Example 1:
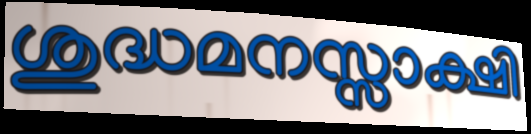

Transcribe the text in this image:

ശുദ്ധമനസ്സാക്ഷി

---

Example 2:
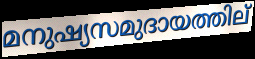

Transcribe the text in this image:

മനുഷ്യസമുദായത്തില്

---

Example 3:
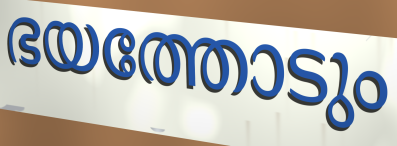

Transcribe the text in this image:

ഭയത്തോടും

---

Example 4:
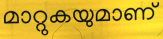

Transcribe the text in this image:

മാറ്റുകയുമാണ്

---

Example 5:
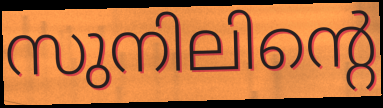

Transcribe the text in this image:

സുനിലിന്റെ